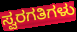
ಸ್ವರಗತಿಗಳು